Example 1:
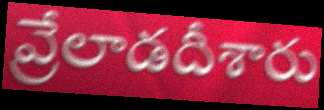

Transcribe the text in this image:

వ్రేలాడదీశారు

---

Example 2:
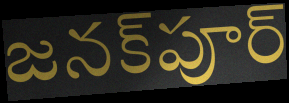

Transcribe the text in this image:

జనక్‌పూర్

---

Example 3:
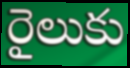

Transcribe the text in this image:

రైలుకు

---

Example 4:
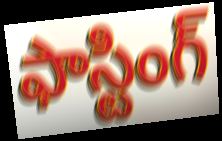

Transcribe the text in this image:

ఫాస్టింగ్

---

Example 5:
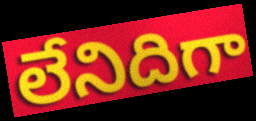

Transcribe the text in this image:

లేనిదిగా